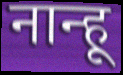
नान्हू